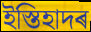
ইস্তিহাদৰ